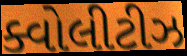
ક્વોલીટીઝ